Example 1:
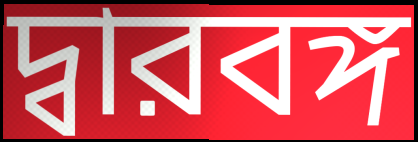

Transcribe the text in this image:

দ্বারবঙ্গ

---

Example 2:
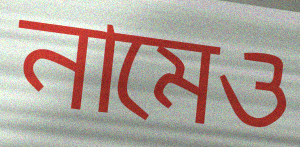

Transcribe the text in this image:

নামেও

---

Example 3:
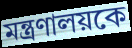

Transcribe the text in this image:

মন্ত্রণালয়কে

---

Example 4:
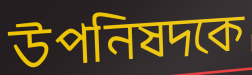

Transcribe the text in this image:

উপনিষদকে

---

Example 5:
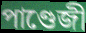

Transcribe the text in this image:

পাণ্ডেজী